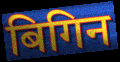
बिगिन